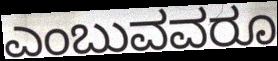
ಎಂಬುವವರೂ